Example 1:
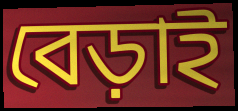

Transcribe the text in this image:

বেড়াই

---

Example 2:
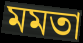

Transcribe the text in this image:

মমতা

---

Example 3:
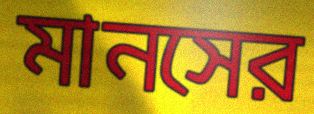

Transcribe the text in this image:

মানসের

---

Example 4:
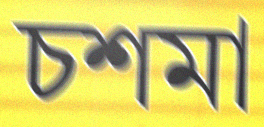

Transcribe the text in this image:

চশমা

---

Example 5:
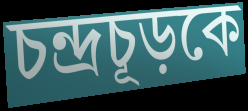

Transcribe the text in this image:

চন্দ্রচূড়কে